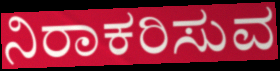
ನಿರಾಕರಿಸುವ